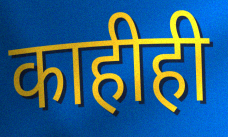
काहीही